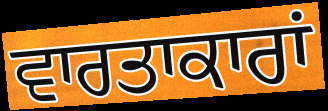
ਵਾਰਤਾਕਾਰਾਂ